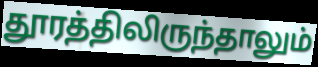
தூரத்திலிருந்தாலும்